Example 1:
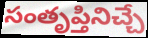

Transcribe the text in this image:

సంతృప్తినిచ్చే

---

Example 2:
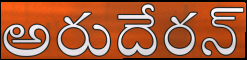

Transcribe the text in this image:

అరుదేరన్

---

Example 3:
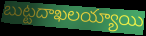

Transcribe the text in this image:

బుట్టదాఖలయ్యాయి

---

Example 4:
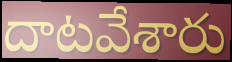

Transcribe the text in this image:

దాటవేశారు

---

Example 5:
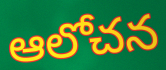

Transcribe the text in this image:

ఆలోచన